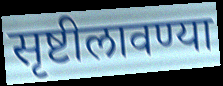
सृष्टीलावण्या